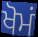
ਖੋਮਂ